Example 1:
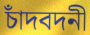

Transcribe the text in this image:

চাঁদবদনী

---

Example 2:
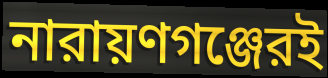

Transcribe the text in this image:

নারায়ণগঞ্জেরই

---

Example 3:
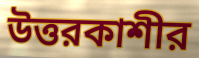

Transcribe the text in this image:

উত্তরকাশীর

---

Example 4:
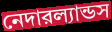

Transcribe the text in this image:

নেদারল্যান্ডস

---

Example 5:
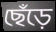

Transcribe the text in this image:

ছেঁড়ে